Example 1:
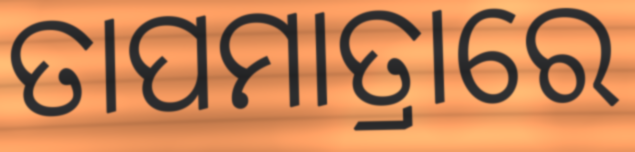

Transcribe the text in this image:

ତାପମାତ୍ରାରେ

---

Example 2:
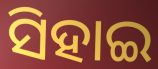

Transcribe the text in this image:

ସିହାଇ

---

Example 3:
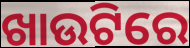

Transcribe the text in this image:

ଖାଉଟିରେ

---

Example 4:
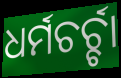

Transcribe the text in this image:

ଧର୍ମଚର୍ଚ୍ଚା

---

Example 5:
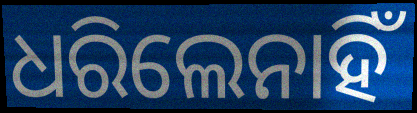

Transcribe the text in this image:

ଧରିଲେନାହିଁ